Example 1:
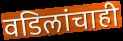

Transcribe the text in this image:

वडिलांचाही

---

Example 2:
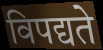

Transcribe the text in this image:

विपद्यते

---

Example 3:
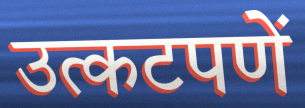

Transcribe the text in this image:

उत्कटपणें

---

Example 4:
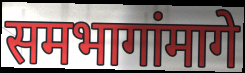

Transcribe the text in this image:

समभागांमागे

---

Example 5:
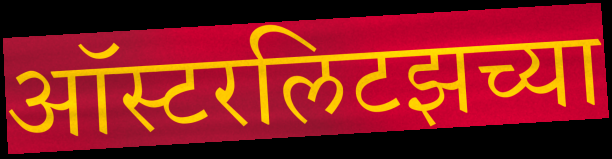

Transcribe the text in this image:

ऑस्टरलिटझच्या